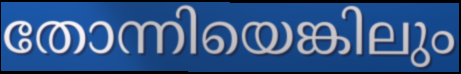
തോന്നിയെങ്കിലും